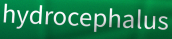
hydrocephalus